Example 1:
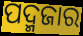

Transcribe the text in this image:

ପଦ୍ମଜାର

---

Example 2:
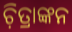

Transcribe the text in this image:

ଚ଼ିତ୍ରାଙ୍କନ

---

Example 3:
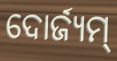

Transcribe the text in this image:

ଦୋର୍ଜ୍ୟମ୍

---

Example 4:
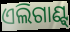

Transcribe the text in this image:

ଏଲିଗାଣ୍ଟ୍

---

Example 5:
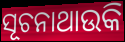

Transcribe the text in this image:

ସୂଚନାଥାଉକି